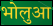
भोलुआ